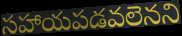
సహాయపడవలెనని